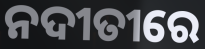
ନଦୀତୀରେ